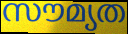
സൗമ്യത